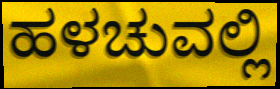
ಹಳಚುವಲ್ಲಿ